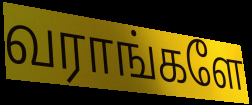
வராங்களே